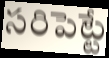
సరిపెట్టే